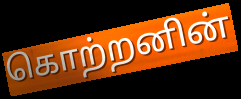
கொற்றனின்